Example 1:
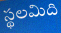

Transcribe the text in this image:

స్థలమిది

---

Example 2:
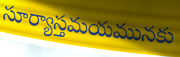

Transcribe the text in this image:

సూర్యాస్తమయమునకు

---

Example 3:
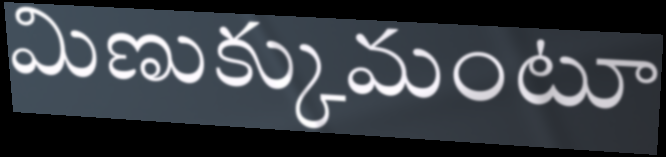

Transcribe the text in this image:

మిణుక్కుమంటూ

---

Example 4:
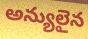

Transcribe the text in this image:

అన్యులైన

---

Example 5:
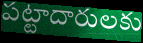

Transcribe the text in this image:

పట్టాదారులకు